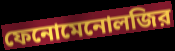
ফেনোমেনোলজির